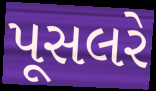
પૂસલરે